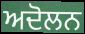
ਅਦੋਲਨ